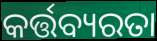
କର୍ତ୍ତବ୍ୟରତା